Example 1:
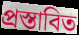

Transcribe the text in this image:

প্রস্তাবিত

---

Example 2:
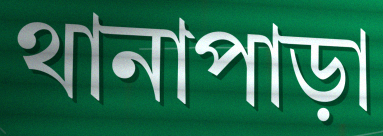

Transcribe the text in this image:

থানাপাড়া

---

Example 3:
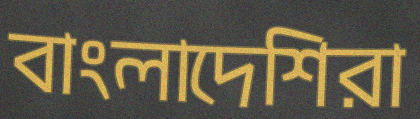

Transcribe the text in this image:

বাংলাদেশিরা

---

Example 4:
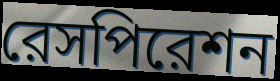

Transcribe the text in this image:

রেসপিরেশন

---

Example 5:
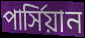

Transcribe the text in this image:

পার্সিয়ান